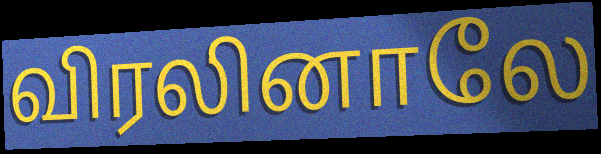
விரலினாலே